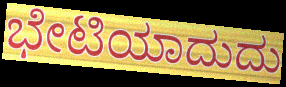
ಭೇಟಿಯಾದುದು